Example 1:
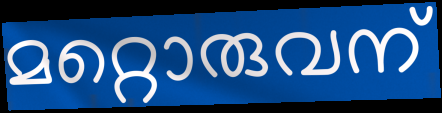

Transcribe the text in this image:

മറ്റൊരുവന്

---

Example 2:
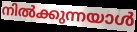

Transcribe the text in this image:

നിൽക്കുന്നയാൾ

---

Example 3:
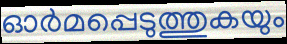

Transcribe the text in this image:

ഓർമപ്പെടുത്തുകയും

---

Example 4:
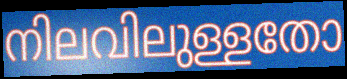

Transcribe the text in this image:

നിലവിലുള്ളതോ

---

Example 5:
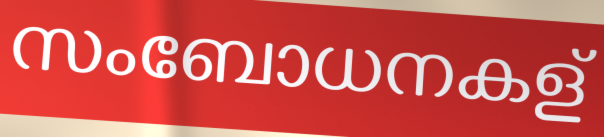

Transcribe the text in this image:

സംബോധനകള്